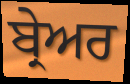
ਬ੍ਰੇਅਰ